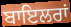
ਬਾਇਲਰਾਂ